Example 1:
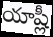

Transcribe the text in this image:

యాష్లీ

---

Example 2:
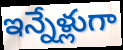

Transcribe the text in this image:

ఇన్నేళ్లుగా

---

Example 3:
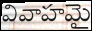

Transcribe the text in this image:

వివాహమై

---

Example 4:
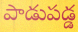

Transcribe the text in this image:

పాడుపడ్డ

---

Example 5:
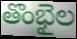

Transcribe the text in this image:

తొంభైల